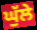
ਘੁੱਲੇ